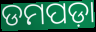
ଡମପଡ଼ା